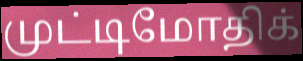
முட்டிமோதிக்